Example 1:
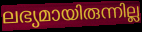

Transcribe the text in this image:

ലഭ്യമായിരുന്നില്ല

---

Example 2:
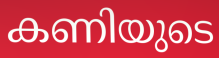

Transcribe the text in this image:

കണിയുടെ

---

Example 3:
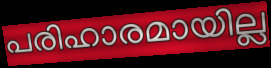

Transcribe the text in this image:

പരിഹാരമായില്ല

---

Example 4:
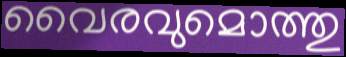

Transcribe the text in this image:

വൈരവുമൊത്തു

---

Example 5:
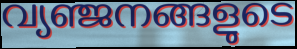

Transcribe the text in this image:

വ്യഞ്ജനങ്ങളുടെ